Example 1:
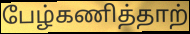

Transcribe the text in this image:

பேழ்கணித்தாற்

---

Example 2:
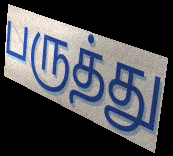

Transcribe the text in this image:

பருத்து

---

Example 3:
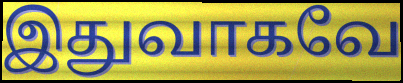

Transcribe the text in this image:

இதுவாகவே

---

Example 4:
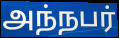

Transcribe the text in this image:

அந்நபர்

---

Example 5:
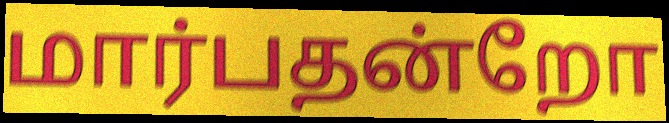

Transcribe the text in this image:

மார்பதன்றோ